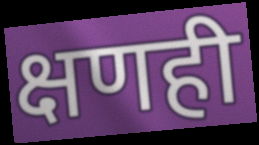
क्षणही